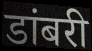
डांबरी